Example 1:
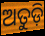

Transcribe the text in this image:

ଅତୁଡ଼ି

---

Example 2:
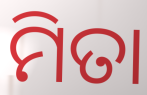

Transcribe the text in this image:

ମିତା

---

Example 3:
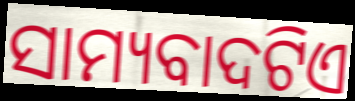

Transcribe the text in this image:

ସାମ୍ୟବାଦଟିଏ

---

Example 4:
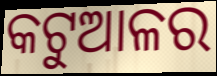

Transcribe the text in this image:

କଟୁଆଳର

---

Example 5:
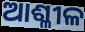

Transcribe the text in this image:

ଆଶ୍ଳୀଳ